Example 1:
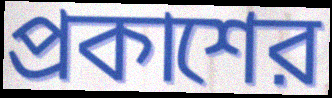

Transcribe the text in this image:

প্রকাশের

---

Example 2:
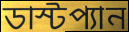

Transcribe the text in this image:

ডাস্টপ্যান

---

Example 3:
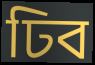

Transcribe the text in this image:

ঢিব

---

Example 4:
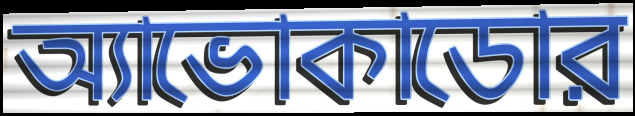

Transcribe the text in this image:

অ্যাভোকাডোর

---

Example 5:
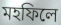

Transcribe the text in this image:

মহফিলে